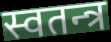
स्वतन्त्र